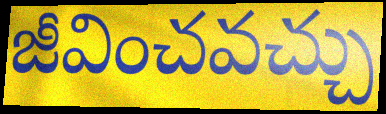
జీవించవచ్చు